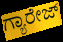
ಗ್ಯಾರೇಜ್